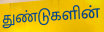
துண்டுகளின்